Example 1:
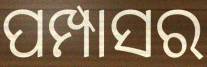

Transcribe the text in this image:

ପମ୍ପାସର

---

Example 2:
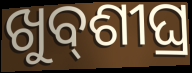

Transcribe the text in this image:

ଖୁବ୍‌ଶୀଘ୍ର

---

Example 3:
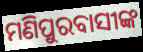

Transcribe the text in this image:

ମଣିପୁରବାସୀଙ୍କ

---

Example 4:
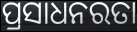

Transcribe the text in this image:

ପ୍ରସାଧନରତା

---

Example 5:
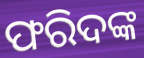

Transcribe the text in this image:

ଫରିଦଙ୍କ